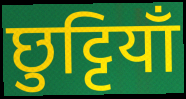
छुट्टियाँ